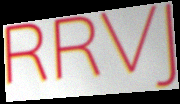
RRVJ